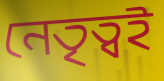
নেতৃত্বই